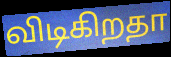
விடிகிறதா